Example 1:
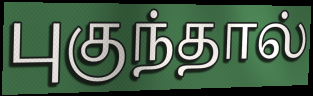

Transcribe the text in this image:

புகுந்தால்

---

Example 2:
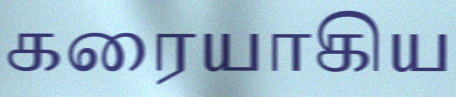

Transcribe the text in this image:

கரையாகிய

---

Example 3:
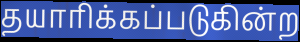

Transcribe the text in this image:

தயாரிக்கப்படுகின்ற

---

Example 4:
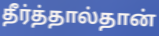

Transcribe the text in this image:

தீர்த்தால்தான்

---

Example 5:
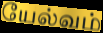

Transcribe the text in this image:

யேல்வம்